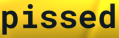
pissed